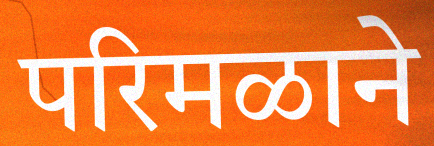
परिमळाने